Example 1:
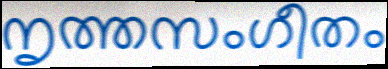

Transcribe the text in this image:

നൃത്തസംഗീതം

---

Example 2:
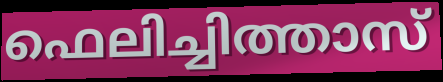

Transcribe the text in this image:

ഫെലിച്ചിത്താസ്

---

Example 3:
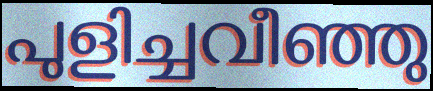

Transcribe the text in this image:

പുളിച്ചവീഞ്ഞു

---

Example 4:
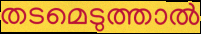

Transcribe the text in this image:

തടമെടുത്താൽ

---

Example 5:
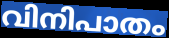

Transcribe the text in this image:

വിനിപാതം